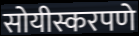
सोयीस्करपणे